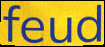
feud